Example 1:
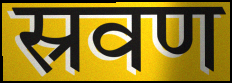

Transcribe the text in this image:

स्रवण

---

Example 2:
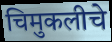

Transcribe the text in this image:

चिमुकलीचे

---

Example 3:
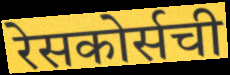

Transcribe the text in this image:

रेसकोर्सची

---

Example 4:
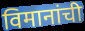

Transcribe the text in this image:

विमानांची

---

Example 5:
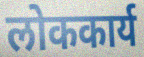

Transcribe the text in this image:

लोककार्य